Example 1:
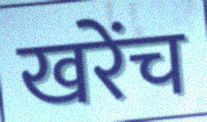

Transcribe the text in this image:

खरेंच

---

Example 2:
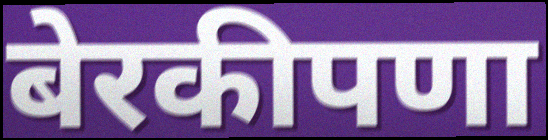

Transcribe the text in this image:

बेरकीपणा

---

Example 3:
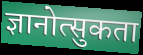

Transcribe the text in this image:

ज्ञानोत्सुकता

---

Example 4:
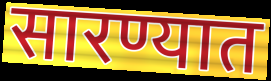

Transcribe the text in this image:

सारण्यात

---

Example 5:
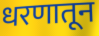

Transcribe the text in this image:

धरणातून